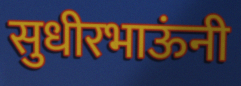
सुधीरभाऊंनी